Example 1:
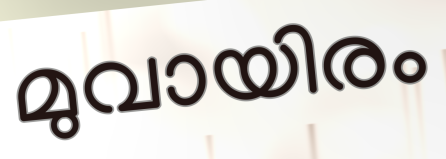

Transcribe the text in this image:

മുവായിരം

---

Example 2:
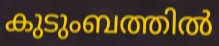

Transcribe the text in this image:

കുടുംബത്തിൽ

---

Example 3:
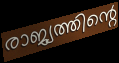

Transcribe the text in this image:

രാജ്യത്തിന്റെ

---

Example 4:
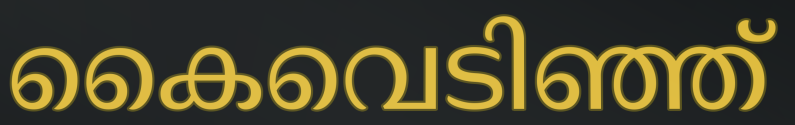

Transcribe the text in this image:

കൈവെടിഞ്ഞ്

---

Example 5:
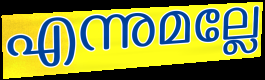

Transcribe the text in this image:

എന്നുമല്ലേ